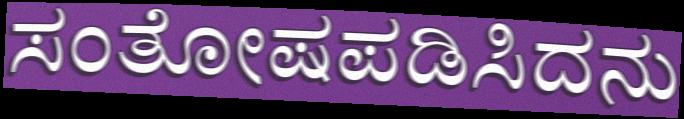
ಸಂತೋಷಪಡಿಸಿದನು